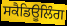
ਸਕੈਡਿਊਲਿੰਗ